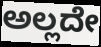
ಅಲ್ಲದೇ